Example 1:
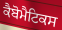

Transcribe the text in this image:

ਕੈਬੋਮੈਟਿਕਸ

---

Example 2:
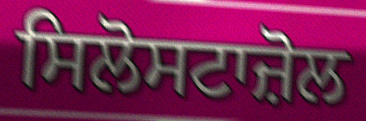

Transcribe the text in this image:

ਸਿਲੋਸਟਾਜ਼ੋਲ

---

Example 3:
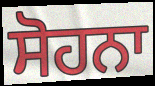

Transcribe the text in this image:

ਸੋਹਨਾ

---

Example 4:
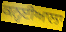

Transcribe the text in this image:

ਕਨ੍ਹਈਆਲਾ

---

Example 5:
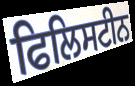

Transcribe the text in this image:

ਫਿਲਿਸਟੀਨ